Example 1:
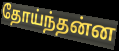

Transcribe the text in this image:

தோய்ந்தன்ன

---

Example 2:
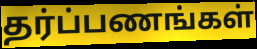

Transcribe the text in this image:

தர்ப்பணங்கள்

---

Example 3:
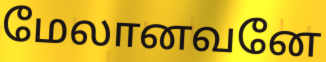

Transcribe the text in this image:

மேலானவனே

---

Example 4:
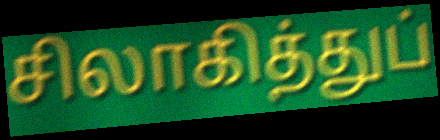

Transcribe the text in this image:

சிலாகித்துப்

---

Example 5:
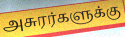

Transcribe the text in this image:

அசுரர்களுக்கு